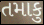
તમાકુ